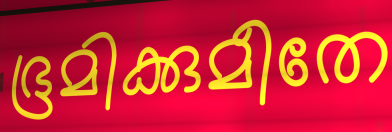
ഭൂമിക്കുമീതേ